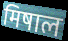
मिषाल